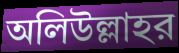
অলিউল্লাহর